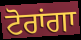
ਟੋਰਾਂਗਾ